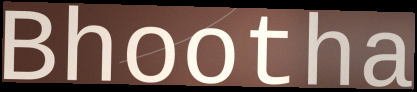
Bhootha